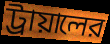
ট্রায়ালের